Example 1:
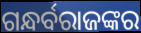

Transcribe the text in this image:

ଗନ୍ଧର୍ବରାଜଙ୍କର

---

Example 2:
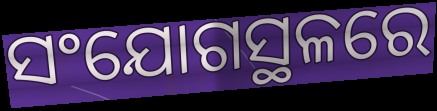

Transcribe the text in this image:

ସଂଯୋଗସ୍ଥଳରେ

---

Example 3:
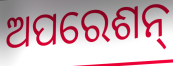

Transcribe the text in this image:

ଅପରେଶନ୍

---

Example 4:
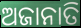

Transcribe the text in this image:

ଅଜାନାତି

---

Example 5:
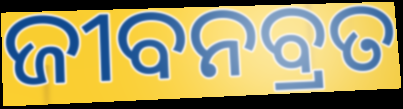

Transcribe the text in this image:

ଜୀବନବ୍ରତ